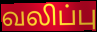
வலிப்பு